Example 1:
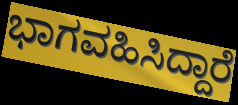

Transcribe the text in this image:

ಭಾಗವಹಿಸಿದ್ದಾರೆ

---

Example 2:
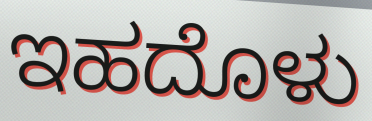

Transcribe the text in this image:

ಇಹದೊಳು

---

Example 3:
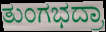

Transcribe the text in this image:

ತುಂಗಭದ್ರಾ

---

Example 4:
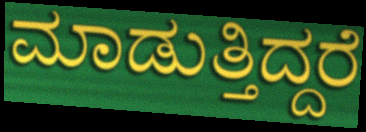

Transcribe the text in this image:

ಮಾಡುತ್ತಿದ್ದರೆ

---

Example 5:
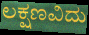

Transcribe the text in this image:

ಲಕ್ಷಣವಿದು